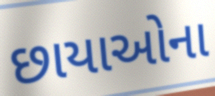
છાયાઓના